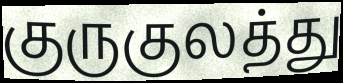
குருகுலத்து